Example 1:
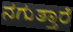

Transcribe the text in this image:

ನಗುತ್ತಾರೆ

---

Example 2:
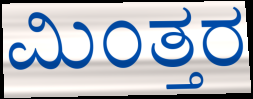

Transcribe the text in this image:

ಮಿಂತ್ತರ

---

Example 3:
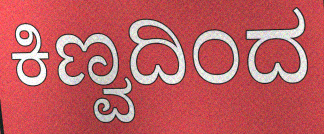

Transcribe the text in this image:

ಕಿಣ್ವದಿಂದ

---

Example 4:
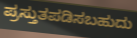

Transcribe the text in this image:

ಪ್ರಸ್ತುತಪಡಿಸಬಹುದು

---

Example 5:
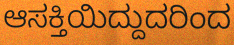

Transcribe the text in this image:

ಆಸಕ್ತಿಯಿದ್ದುದರಿಂದ